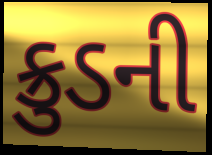
ક્રુડની